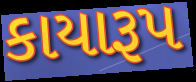
કાયારૂપ